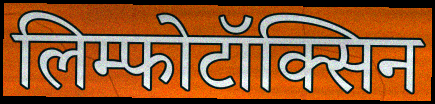
लिम्फोटॉक्सिन